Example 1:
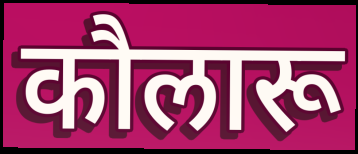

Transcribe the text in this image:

कौलारू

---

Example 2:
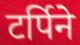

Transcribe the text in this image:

टर्पिने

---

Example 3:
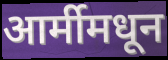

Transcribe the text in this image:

आर्मीमधून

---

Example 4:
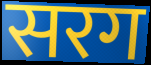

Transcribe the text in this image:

सरग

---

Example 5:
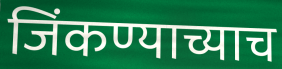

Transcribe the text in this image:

जिंकण्याच्याच